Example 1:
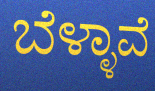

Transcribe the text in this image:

ಬೆಳ್ಳಾವೆ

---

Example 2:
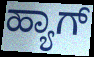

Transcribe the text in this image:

ಹ್ಯಾಗ್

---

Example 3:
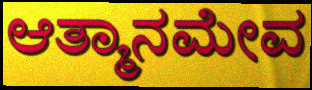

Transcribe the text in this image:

ಆತ್ಮಾನಮೇವ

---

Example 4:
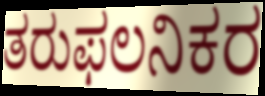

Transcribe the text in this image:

ತರುಫಲನಿಕರ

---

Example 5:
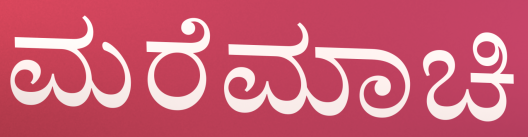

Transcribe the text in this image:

ಮರೆಮಾಚಿ